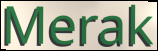
Merak